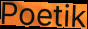
Poetik